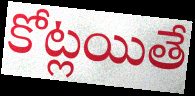
కోట్లయితే